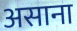
असाना